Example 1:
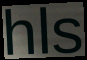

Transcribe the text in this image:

hls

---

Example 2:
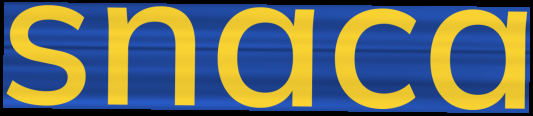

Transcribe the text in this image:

snaca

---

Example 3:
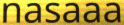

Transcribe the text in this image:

nasaaa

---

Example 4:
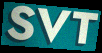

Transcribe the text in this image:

SVT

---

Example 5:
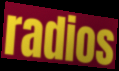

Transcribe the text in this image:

radios